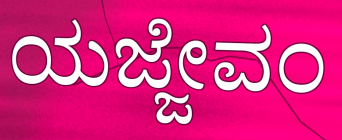
ಯಜ್ಜೇವಂ